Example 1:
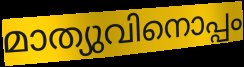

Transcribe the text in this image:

മാത്യുവിനൊപ്പം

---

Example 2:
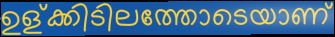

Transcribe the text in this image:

ഉള്ക്കിടിലത്തോടെയാണ്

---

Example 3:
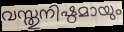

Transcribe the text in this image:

വസ്തുനിഷ്ഠമായും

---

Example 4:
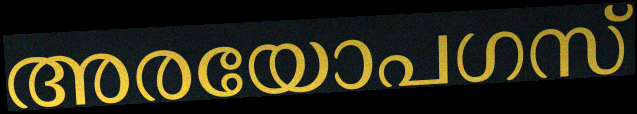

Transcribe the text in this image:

അരയോപഗസ്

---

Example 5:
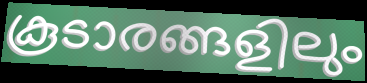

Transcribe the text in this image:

കൂടാരങ്ങളിലും